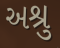
અશ્રુ